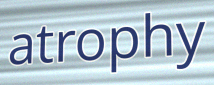
atrophy